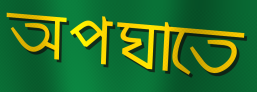
অপঘাতে